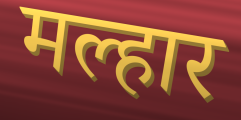
मल्हार